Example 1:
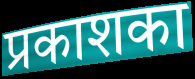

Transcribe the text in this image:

प्रकाशका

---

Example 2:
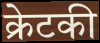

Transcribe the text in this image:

क्रेटकी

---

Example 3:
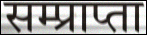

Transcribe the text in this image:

सम्प्राप्ता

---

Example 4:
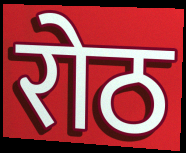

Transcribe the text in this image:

रोठ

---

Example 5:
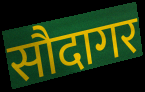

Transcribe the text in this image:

सौदागर